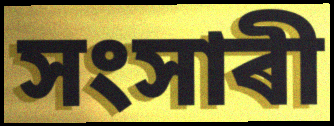
সংসাৰী